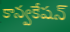
కాన్వకేషన్